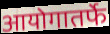
आयोगातर्फे